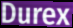
Durex